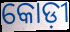
କୋଡ଼ୀ